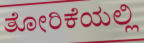
ತೋರಿಕೆಯಲ್ಲಿ